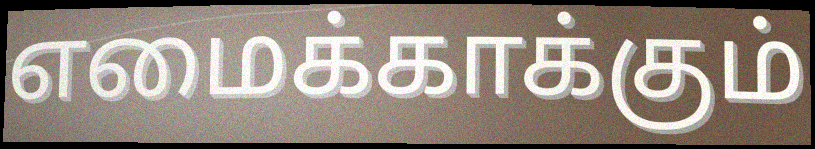
எமைக்காக்கும்